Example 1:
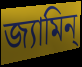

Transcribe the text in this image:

জ্যামিন্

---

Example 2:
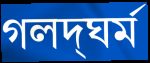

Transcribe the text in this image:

গলদ্‌ঘর্ম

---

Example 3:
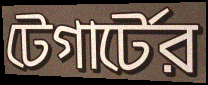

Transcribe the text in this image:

টেগার্টের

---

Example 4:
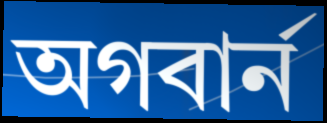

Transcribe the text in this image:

অগবার্ন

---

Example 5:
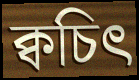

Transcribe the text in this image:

ক্বচিৎ